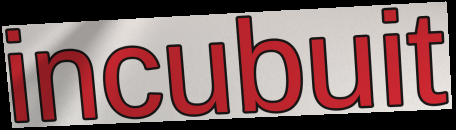
incubuit